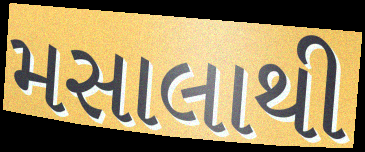
મસાલાથી